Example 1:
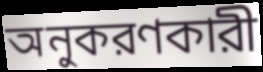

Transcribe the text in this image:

অনুকরণকারী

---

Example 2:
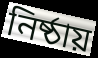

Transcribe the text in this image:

নিষ্ঠায়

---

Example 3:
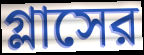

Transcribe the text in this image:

গ্লাসের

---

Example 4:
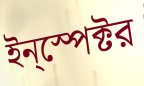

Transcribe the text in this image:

ইন্‌স্পেক্টর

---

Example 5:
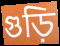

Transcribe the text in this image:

গুড়ি